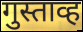
गुस्ताव्ह